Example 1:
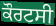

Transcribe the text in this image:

ਕੌਰਟਸੀ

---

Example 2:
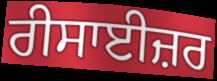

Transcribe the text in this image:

ਰੀਸਾਈਜ਼ਰ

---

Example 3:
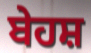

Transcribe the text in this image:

ਬੇਹਸ਼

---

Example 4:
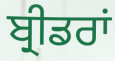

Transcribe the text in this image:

ਬ੍ਰੀਡਰਾਂ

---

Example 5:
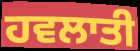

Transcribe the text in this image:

ਹਵਲਾਤੀ